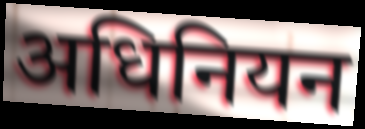
अधिनियन